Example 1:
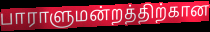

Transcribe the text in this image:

பாராளுமன்றத்திற்கான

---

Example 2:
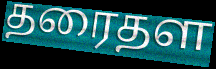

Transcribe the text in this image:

தரைதள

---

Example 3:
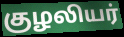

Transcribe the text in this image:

குழலியர்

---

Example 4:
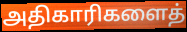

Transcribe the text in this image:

அதிகாரிகளைத்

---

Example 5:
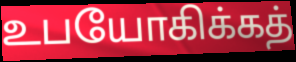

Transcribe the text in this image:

உபயோகிக்கத்